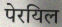
पेरयिल